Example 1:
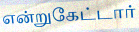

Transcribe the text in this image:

என்றுகேட்டார்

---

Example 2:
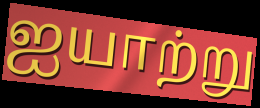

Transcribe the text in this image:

ஐயாற்று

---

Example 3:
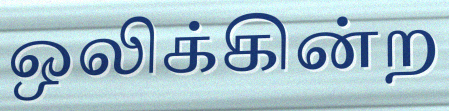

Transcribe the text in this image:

ஒலிக்கின்ற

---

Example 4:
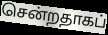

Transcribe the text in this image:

சென்றதாகப்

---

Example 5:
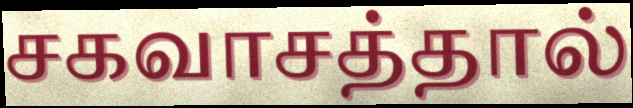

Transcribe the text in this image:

சகவாசத்தால்